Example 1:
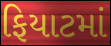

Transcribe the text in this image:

ફિયાટમાં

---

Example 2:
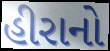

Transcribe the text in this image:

હીરાનો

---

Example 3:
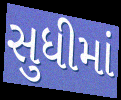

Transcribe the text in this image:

સુધીમાં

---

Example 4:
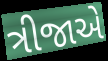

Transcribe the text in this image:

ત્રીજાએ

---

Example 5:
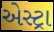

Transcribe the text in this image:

એસ્ટ્રા